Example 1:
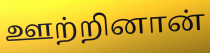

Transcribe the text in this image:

ஊற்றினான்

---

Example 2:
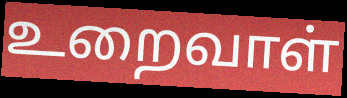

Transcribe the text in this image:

உறைவாள்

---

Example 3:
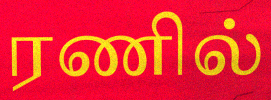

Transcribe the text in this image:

ரணில்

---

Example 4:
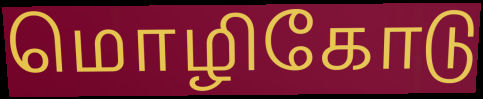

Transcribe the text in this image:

மொழிகோடு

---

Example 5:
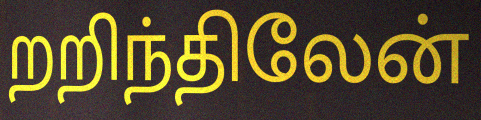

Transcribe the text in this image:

றறிந்திலேன்